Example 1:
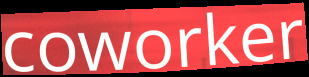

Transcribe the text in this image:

coworker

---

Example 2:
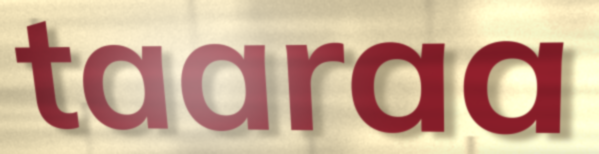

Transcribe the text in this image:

taaraa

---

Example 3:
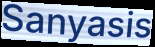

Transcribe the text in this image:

Sanyasis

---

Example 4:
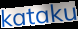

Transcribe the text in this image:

kataku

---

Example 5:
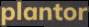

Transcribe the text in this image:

plantor